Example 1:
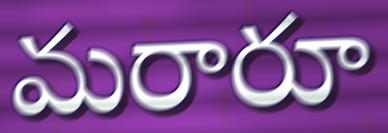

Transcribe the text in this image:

మరారూ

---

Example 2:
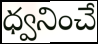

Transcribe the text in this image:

ధ్వనించే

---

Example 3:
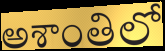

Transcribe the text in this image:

అశాంతిలో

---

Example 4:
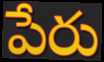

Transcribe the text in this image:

పేరు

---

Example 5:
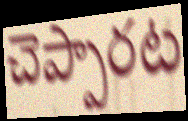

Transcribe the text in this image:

చెప్పారట